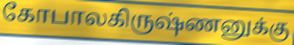
கோபாலகிருஷ்ணனுக்கு